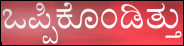
ಒಪ್ಪಿಕೊಂಡಿತ್ತು